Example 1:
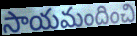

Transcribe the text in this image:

సాయమందించి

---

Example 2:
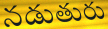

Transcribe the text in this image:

నడుతురు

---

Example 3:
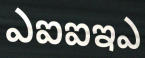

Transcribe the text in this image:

ఎఐఐఇఎ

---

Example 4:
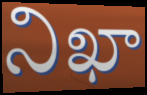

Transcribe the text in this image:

నిఖా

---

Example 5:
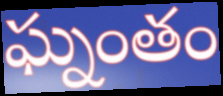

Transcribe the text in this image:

ఘ్నంతం